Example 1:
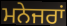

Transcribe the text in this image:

ਮਨੇਜਰਾਂ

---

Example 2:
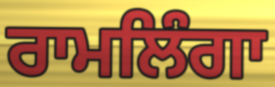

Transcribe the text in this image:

ਰਾਮਲਿੰਗਾ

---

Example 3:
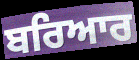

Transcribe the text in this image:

ਬਰਿਆਰ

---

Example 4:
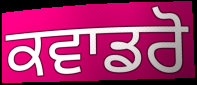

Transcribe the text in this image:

ਕਵਾਡਰੋ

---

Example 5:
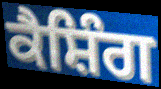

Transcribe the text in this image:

ਕੈਸ਼ਿੰਗ